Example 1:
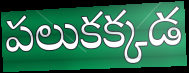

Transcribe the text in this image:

పలుకక్కడ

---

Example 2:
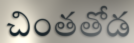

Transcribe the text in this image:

చింతతోడ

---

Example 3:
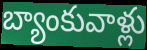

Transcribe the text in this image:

బ్యాంకువాళ్లు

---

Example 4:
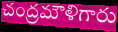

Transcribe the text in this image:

చంద్రమౌళిగారు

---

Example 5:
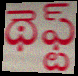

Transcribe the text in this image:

థెఫ్ట్